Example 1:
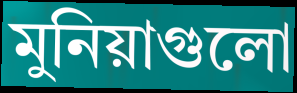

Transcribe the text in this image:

মুনিয়াগুলো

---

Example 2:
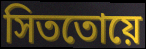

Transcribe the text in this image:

সিততোয়ে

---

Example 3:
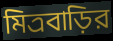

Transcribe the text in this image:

মিত্রবাড়ির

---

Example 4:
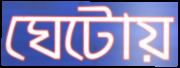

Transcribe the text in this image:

ঘেটোয়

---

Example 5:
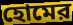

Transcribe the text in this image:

হোমের